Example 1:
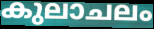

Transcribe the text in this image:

കുലാചലം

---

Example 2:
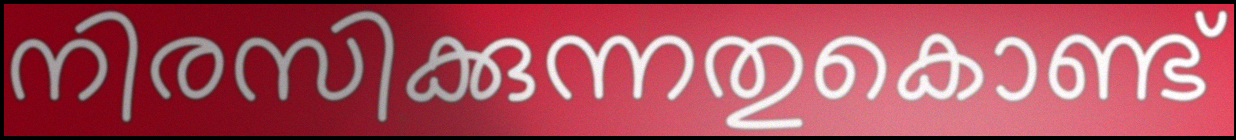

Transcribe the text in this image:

നിരസിക്കുന്നതുകൊണ്ട്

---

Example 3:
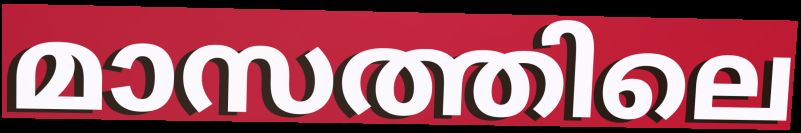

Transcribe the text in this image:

മാസത്തിലെ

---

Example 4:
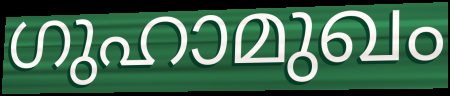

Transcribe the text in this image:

ഗുഹാമുഖം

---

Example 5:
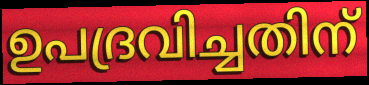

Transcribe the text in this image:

ഉപദ്രവിച്ചതിന്